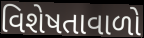
વિશેષતાવાળો